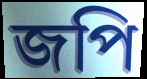
জপি